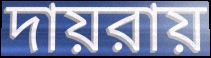
দায়রায়